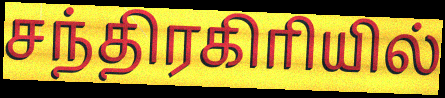
சந்திரகிரியில்